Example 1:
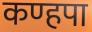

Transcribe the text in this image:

कण्हपा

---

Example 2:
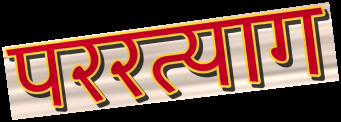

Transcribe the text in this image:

पररत्याग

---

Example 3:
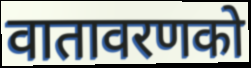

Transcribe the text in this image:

वातावरणको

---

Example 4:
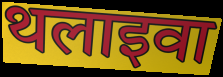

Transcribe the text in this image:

थलाइवा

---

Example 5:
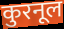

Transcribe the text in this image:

कुरनूल